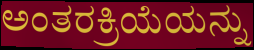
ಅಂತರಕ್ರಿಯೆಯನ್ನು